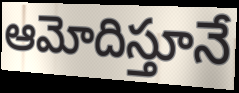
ఆమోదిస్తూనే